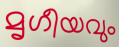
മൃഗീയവും